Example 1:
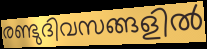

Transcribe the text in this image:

രണ്ടുദിവസങ്ങളിൽ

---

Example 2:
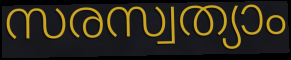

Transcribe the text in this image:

സരസ്വത്യാം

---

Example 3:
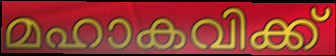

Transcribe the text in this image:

മഹാകവിക്ക്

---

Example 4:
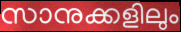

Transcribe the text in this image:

സാനുക്കളിലും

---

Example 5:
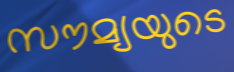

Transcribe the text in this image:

സൗമ്യയുടെ